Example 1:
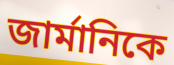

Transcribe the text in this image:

জার্মানিকে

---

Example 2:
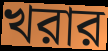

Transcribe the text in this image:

খরার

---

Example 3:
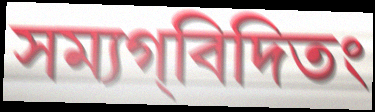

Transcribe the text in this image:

সম্যগ্‌বিদিতং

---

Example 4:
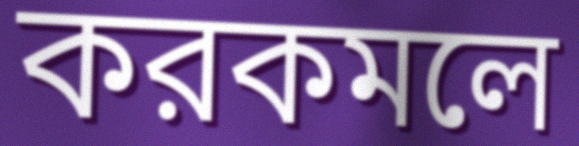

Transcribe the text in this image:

করকমলে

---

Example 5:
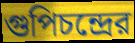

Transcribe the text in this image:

গুপিচন্দ্রের